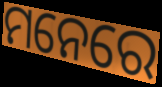
ମନେରେ